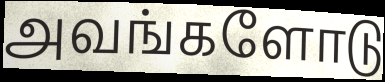
அவங்களோடு